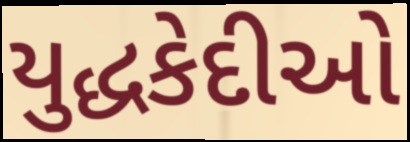
યુદ્ધકેદીઓ